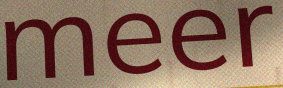
meer